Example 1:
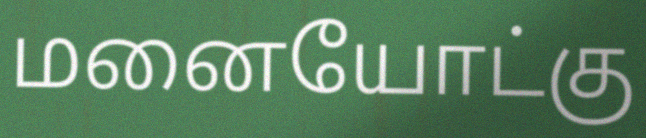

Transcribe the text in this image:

மனையோட்கு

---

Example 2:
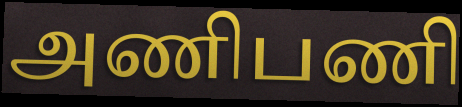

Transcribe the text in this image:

அணிபணி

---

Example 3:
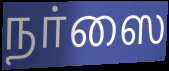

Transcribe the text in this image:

நர்ஸை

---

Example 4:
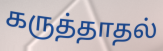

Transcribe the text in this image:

கருத்தாதல்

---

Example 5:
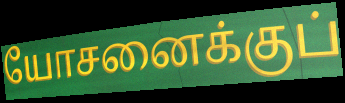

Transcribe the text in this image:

யோசனைக்குப்